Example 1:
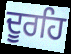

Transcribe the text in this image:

ਦੂਰਹਿ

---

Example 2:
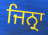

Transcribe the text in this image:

ਜਿਨ੍ਰਾ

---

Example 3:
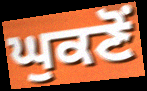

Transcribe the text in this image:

ਘੁਕਣੋਂ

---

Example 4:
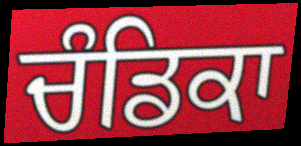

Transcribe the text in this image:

ਚੰਡਿਕਾ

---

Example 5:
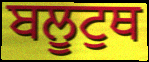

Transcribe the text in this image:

ਬਲੂਟੁਥ